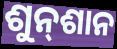
ଶୁନ୍‍ଶାନ